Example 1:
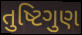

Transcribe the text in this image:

તુષ્ટિગુણ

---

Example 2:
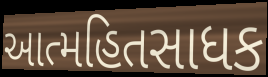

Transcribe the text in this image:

આત્મહિતસાધક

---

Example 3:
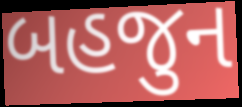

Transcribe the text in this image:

બહજુન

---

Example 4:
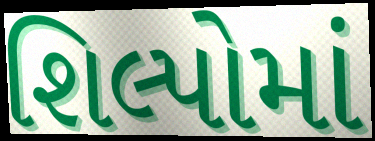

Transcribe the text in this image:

શિલ્પોમાં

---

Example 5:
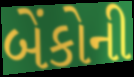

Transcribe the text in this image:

બેંકોની